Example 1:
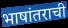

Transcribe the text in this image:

भाषांतराची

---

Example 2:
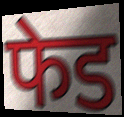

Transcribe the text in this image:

फेड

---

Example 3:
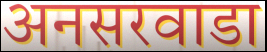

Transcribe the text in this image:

अनसरवाडा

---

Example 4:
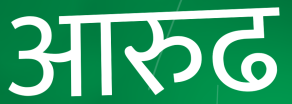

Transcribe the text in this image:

आरुढ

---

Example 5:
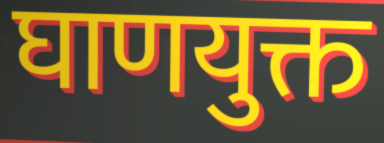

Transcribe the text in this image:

घाणयुक्त